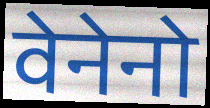
वेनेनो